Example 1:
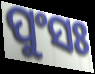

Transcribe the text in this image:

ପୁଂସଃ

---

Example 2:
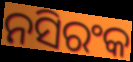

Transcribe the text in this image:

ନସିରଂକ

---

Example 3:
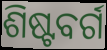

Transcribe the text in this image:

ଶିଷ୍ଟବର୍ଗ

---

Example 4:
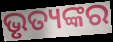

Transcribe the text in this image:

ଭୃତ୍ୟଙ୍କର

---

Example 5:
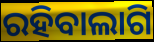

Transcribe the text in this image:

ରହିବାଲାଗି